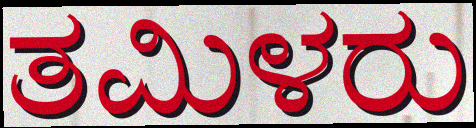
ತಮಿಳರು